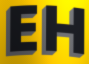
EH